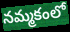
నమ్మకంలో